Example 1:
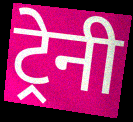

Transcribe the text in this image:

ट्रेनी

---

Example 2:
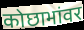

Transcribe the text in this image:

कोछाभांवर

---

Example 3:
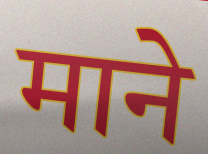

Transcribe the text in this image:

माने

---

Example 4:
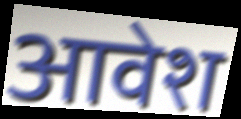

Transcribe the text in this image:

आवेश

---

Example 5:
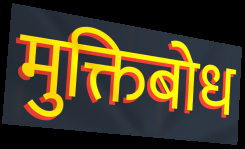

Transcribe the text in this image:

मुक्तिबोध